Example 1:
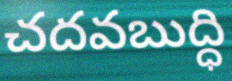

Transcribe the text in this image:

చదవబుద్ధి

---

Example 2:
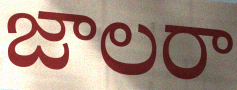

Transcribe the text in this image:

జాలరా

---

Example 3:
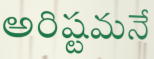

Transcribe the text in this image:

అరిష్టమనే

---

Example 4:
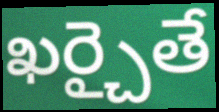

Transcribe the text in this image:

ఖర్చైతే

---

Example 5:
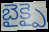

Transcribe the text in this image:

బైక్పై